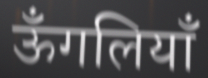
ऊँगलियाँ